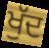
ਖੁੱਦ